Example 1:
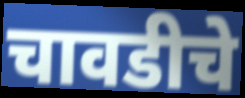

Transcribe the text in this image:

चावडीचे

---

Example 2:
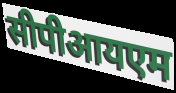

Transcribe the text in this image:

सीपीआयएम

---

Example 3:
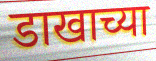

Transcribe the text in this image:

डाखाच्या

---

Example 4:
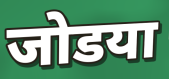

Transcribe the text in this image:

जोडया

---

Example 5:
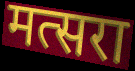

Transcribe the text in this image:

मत्सरा